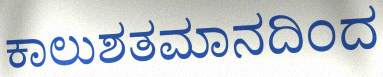
ಕಾಲುಶತಮಾನದಿಂದ